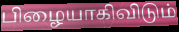
பிழையாகிவிடும்